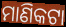
ମାଣିକଟା